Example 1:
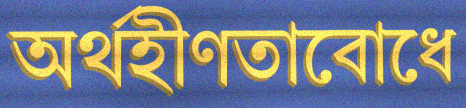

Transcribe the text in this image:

অর্থহীণতাবোধে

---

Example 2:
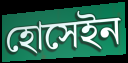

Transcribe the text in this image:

হোসেইন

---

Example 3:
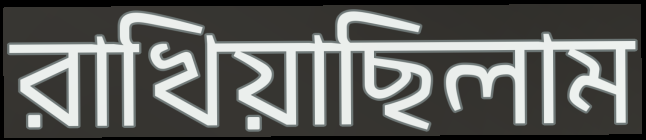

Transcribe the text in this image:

রাখিয়াছিলাম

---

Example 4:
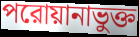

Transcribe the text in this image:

পরোয়ানাভুক্ত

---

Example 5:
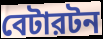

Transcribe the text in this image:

বেটারটন